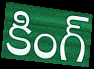
కింగ్